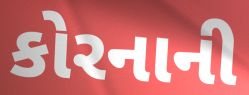
કોરનાની